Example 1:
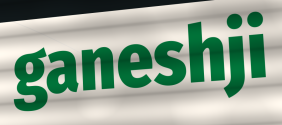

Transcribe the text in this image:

ganeshji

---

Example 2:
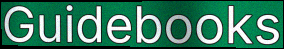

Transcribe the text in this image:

Guidebooks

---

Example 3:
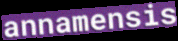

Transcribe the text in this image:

annamensis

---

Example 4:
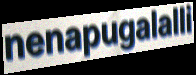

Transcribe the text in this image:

nenapugalalli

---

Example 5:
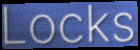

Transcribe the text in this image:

Locks